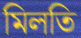
মিলতি